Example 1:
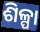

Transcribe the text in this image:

ଶିଳ୍ପା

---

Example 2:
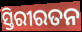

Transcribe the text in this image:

ସ୍ତିରୀରତନ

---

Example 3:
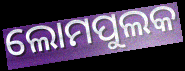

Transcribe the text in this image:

ଲୋମପୁଲକ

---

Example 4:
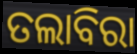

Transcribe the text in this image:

ତଲାବିରା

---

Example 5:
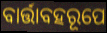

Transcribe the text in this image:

ବାର୍ତ୍ତାବହରୂପେ